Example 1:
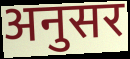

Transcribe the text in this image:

अनुसर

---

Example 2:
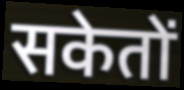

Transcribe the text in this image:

सकेतों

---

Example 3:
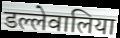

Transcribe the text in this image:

डल्लेवालिया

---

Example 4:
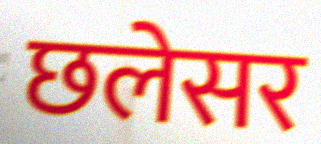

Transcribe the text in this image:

छलेसर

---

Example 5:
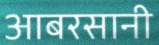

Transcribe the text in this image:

आबरसानी